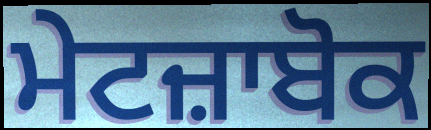
ਮੇਟਜ਼ਾਬੋਕ